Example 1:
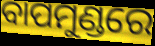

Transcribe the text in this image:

ବାପମୁଣ୍ଡରେ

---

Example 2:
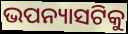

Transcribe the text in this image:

ଭପନ୍ୟାସଟିକୁ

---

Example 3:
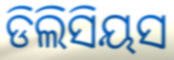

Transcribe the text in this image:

ଡିଲିସିୟସ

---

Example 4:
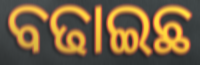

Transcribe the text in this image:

ବଢାଇଛ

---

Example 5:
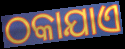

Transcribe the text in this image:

ଠକାଯାଏ